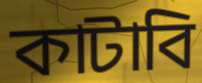
কাটাবি